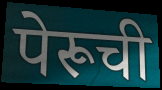
पेरूची